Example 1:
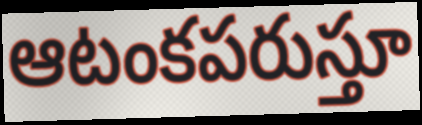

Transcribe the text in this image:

ఆటంకపరుస్తూ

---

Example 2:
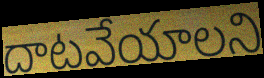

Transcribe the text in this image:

దాటవేయాలని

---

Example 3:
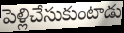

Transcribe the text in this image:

పెళ్లిచేసుకుంటాడు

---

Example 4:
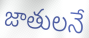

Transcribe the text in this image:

జాతులనే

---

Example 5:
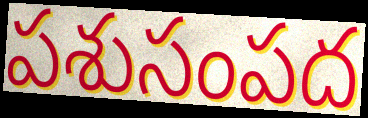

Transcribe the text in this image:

పశుసంపద